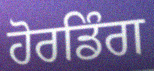
ਹੋਰਡਿੰਗ